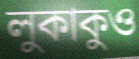
লুকাকুও